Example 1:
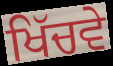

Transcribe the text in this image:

ਖਿੱਚਵੇ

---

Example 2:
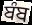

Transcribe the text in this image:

ਬੰਬ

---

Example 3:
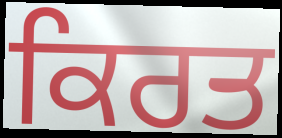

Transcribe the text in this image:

ਕਿਰਤ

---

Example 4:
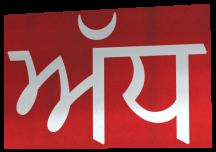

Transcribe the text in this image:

ਅੱਧ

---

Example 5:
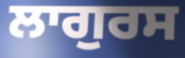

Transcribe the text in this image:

ਲਾਗੁਰਸ